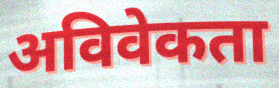
अविवेकता